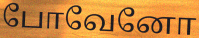
போவேனோ